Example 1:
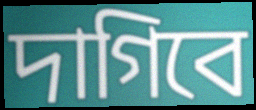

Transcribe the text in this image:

দাগিবে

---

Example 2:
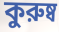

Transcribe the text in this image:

কুরুষ্ব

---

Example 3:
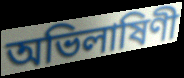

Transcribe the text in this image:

অভিলাষিণী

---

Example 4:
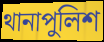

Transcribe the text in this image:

থানাপুলিশ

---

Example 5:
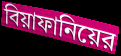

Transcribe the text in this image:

বিয়াফানিয়ের